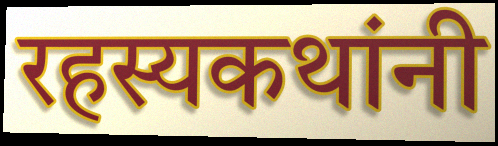
रहस्यकथांनी